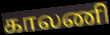
காலணி